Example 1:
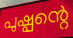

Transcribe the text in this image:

പുഷ്പന്റെ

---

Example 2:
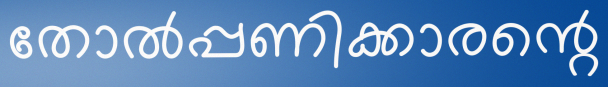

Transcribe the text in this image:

തോൽപ്പണിക്കാരന്റെ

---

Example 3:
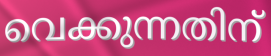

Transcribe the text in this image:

വെക്കുന്നതിന്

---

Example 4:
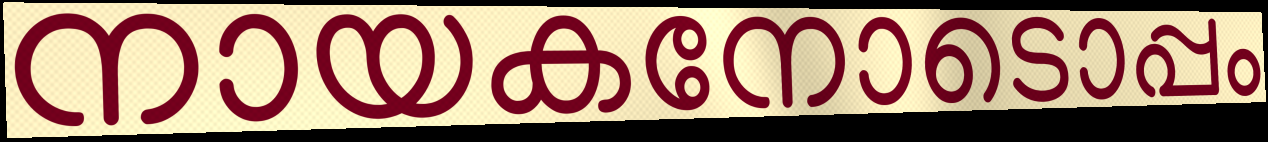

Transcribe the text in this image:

നായകനോടൊപ്പം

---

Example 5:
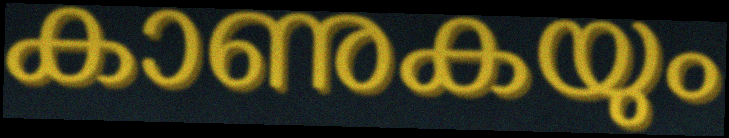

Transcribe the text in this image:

കാണുകയും